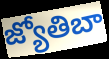
జ్యోతిబా